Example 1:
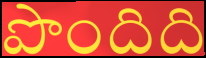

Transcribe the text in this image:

పొందిది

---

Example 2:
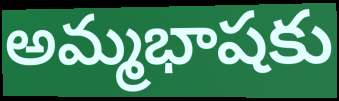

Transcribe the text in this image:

అమ్మభాషకు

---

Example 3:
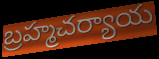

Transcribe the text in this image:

బ్రహ్మచర్యాయ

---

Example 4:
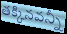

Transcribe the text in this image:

తక్కినవన్నీ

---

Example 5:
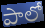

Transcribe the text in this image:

పాలో